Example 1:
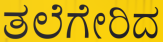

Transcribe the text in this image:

ತಲೆಗೇರಿದ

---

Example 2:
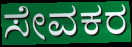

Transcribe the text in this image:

ಸೇವಕರ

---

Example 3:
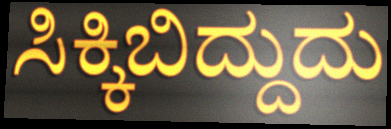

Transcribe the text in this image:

ಸಿಕ್ಕಿಬಿದ್ದುದು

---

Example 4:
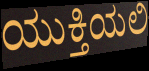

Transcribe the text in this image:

ಯುಕ್ತಿಯಲಿ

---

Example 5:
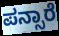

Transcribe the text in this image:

ಪನ್ಸಾರೆ